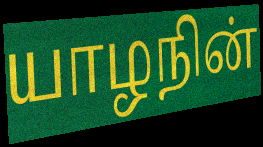
யாழநின்